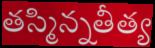
తస్మిన్నతీత్య